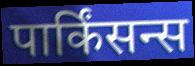
पार्किंसन्स